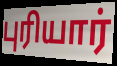
புரியார்